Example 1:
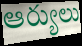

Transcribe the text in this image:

ఆర్యులు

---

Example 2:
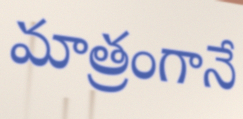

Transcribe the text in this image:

మాత్రంగానే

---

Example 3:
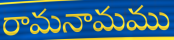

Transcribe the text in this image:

రామనామము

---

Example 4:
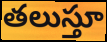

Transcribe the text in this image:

తలుస్తూ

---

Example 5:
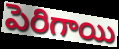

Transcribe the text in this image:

పెరిగాయి